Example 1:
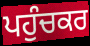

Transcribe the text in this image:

ਪਹੁੰਚਕਰ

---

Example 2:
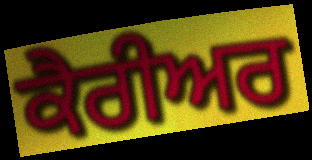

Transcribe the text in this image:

ਕੈਰੀਅਰ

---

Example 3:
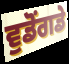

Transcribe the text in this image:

ਵੁਡੋਂਗਡੇ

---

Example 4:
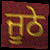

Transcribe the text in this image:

ਜੂਠੇ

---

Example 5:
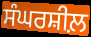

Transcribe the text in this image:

ਸੰਘਰਸ਼ੀਲ਼